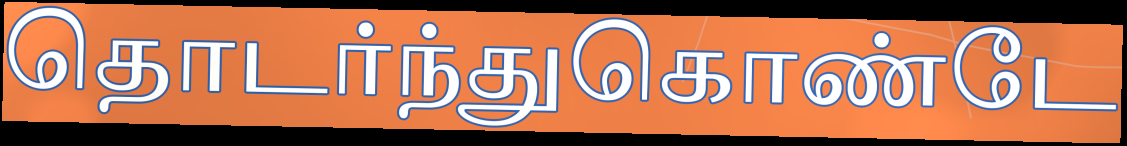
தொடர்ந்துகொண்டே